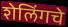
शेलिंगचे